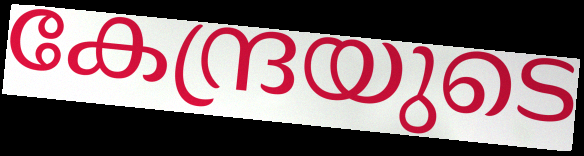
കേന്ദ്രയുടെ